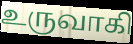
உருவாகி